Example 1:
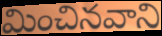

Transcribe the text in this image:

మించినవాని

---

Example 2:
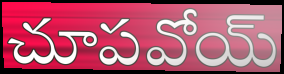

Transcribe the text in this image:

చూపవోయ్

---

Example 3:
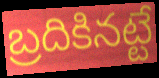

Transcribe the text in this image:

బ్రదికినట్టే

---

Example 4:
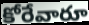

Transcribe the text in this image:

కోరేవారూ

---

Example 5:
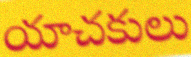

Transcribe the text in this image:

యాచకులు